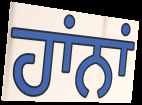
ਹਾਂਨਾਂ